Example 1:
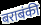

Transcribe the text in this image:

बराबंकी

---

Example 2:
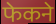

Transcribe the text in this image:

फेकने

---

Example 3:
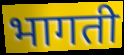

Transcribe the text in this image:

भागती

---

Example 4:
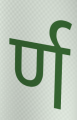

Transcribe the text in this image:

र्ण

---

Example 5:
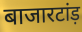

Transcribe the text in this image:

बाजारटांड़